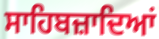
ਸਾਹਿਬਜ਼ਾਦਿਆਂ